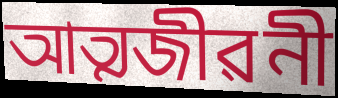
আত্মজীৱনী